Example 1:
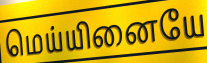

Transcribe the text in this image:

மெய்யினையே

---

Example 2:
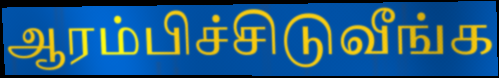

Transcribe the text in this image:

ஆரம்பிச்சிடுவீங்க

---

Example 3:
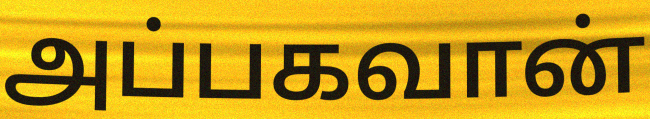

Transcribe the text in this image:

அப்பகவான்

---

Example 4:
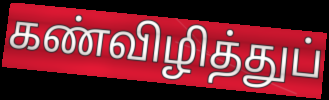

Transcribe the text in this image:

கண்விழித்துப்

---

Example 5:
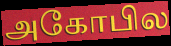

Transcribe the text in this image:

அகோபில